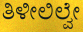
ತಿಳೀಲಿಲ್ವೇ